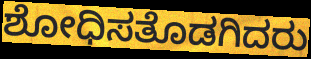
ಶೋಧಿಸತೊಡಗಿದರು